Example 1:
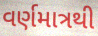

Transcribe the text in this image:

વર્ણમાત્રથી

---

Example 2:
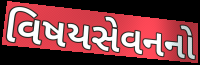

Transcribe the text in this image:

વિષયસેવનનો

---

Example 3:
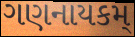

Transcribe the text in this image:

ગણનાયકમ્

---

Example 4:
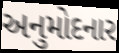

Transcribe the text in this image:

અનુમોદનાર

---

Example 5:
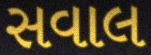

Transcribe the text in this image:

સવાલ